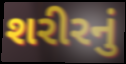
શરીરનું